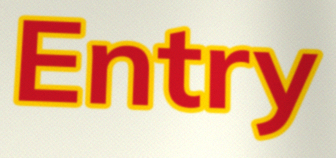
Entry